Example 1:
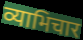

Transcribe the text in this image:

व्याभिचार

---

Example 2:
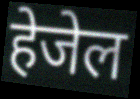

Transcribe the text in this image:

हेजेल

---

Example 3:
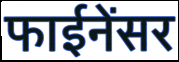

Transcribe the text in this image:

फाईनेंसर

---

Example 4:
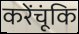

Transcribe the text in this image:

करेंचूंकि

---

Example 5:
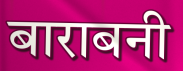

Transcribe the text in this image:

बाराबनी